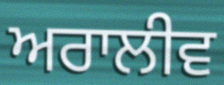
ਅਰਾਲੀਵ